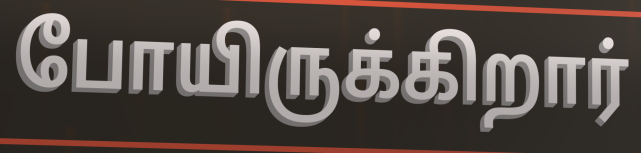
போயிருக்கிறார்